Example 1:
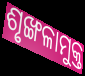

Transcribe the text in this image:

ଶୃଙ୍ଖଳାମୁକ୍ତ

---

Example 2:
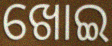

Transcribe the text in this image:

ଖୋଇ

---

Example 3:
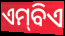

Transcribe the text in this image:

ଏମ୍‌ବିଏ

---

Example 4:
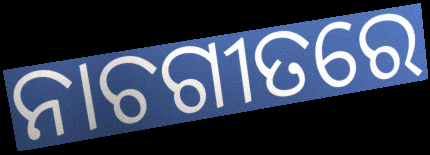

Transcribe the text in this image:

ନାଚଗୀତରେ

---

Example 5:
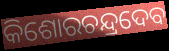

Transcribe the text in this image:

କିଶୋରଚନ୍ଦ୍ରଦେବ